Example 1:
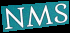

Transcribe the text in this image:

NMS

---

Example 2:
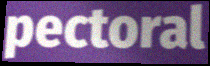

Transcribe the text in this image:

pectoral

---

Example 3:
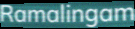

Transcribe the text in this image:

Ramalingam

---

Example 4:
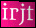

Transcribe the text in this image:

irjt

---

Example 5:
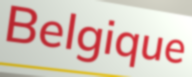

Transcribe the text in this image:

Belgique